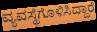
ವ್ಯವಸ್ಥೆಗೊಳಿಸಿದ್ದಾರೆ